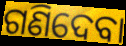
ଗଣିଦେବା